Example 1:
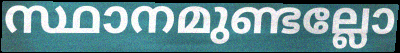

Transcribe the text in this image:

സ്ഥാനമുണ്ടല്ലോ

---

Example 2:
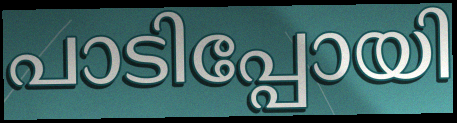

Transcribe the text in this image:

പാടിപ്പോയി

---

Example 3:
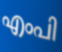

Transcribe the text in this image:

എംപി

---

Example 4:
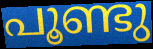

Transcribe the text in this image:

പൂണ്ടു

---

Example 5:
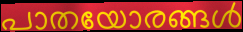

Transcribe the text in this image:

പാതയോരങ്ങൾ